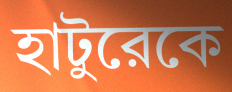
হাটুরেকে